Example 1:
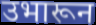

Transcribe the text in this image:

उभारून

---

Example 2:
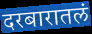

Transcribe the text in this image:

दरबारातलं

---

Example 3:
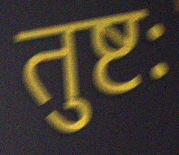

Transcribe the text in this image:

तुष्टः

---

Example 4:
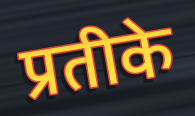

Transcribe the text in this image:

प्रतीके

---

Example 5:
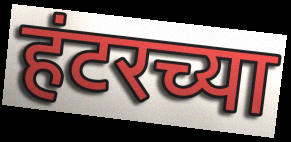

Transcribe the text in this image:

हंटरच्या